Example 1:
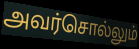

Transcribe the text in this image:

அவர்சொல்லும்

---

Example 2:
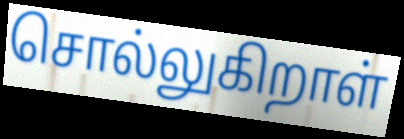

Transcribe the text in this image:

சொல்லுகிறாள்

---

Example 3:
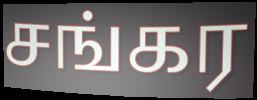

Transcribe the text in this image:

சங்கர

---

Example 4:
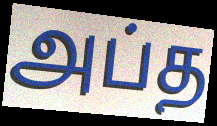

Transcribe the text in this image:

அப்த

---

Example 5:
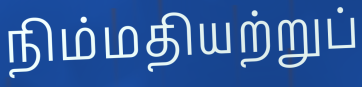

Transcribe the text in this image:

நிம்மதியற்றுப்